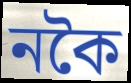
নকৈ